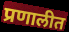
प्रणालीत